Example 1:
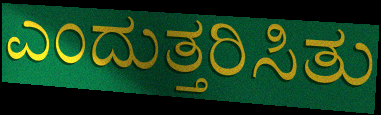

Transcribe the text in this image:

ಎಂದುತ್ತರಿಸಿತು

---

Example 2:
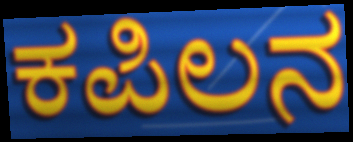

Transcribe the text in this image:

ಕಪಿಲನ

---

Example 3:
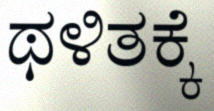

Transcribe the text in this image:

ಥಳಿತಕ್ಕೆ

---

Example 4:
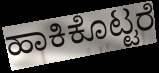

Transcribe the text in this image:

ಹಾಕಿಕೊಟ್ಟರೆ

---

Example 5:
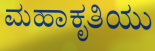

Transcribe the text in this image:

ಮಹಾಕೃತಿಯು